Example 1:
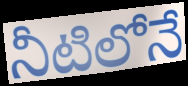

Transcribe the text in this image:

నీటిలోనే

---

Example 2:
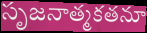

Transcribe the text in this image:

సృజనాత్మకతనూ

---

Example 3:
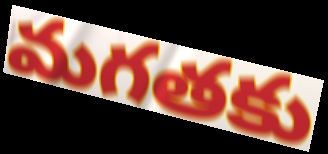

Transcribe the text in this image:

మగతకు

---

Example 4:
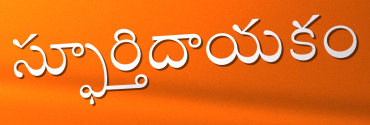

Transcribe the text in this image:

స్ఫూర్తిదాయకం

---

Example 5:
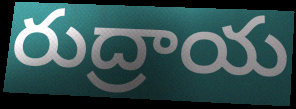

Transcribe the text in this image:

రుద్రాయ